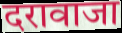
दरावाजा